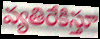
వ్యతిరేకిస్తూ